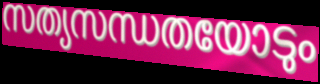
സത്യസന്ധതയോടും